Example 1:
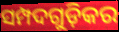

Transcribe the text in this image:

ସମ୍ପଦଗୁଡ଼ିକର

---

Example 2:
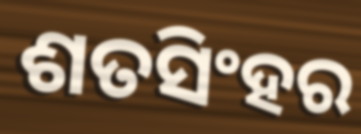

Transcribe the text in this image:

ଶତସିଂହର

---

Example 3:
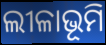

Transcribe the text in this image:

ଲୀଳାଭୂମି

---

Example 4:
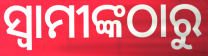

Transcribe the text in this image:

ସ୍ବାମୀଙ୍କଠାରୁ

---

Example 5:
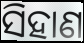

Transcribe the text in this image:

ସିହାଣ